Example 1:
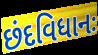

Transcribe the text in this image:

છંદવિધાનઃ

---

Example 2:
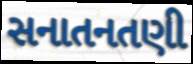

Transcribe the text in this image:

સનાતનતણી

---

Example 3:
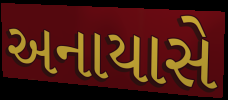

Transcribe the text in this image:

અનાયાસે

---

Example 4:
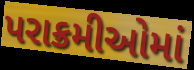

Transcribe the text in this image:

પરાક્રમીઓમાં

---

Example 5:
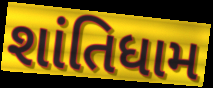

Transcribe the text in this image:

શાંતિધામ